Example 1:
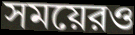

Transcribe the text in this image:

সময়েরও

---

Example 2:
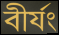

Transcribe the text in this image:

বীর্যং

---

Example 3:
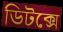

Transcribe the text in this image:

ডিটক্সে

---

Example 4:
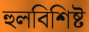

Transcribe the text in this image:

হুলবিশিষ্ট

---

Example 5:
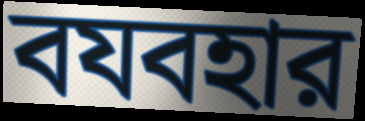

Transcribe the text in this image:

বযবহার